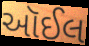
ઑઈલ